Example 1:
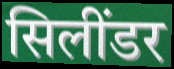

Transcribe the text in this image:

सिलींडर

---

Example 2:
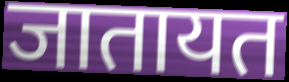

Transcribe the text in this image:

जातायत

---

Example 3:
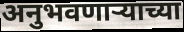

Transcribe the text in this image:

अनुभवणार्‍याच्या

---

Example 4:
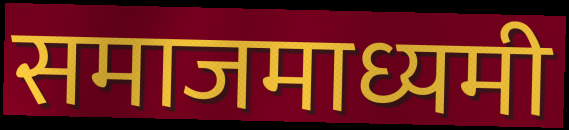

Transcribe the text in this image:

समाजमाध्यमी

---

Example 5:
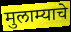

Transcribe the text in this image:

मुलाम्याचे